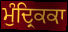
ਮੁੰਦ੍ਰਿਕਕਾ